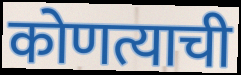
कोणत्याची